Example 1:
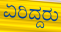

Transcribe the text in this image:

ಏರಿದ್ದರು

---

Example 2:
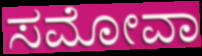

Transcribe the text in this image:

ಸಮೋವಾ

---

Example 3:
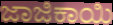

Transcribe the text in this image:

ಜಾಜಿಕಾಯಿ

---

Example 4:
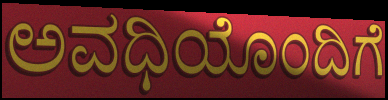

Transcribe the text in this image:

ಅವಧಿಯೊಂದಿಗೆ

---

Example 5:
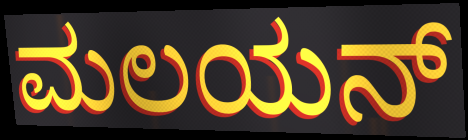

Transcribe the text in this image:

ಮಲಯನ್